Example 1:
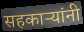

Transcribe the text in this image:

सहकाऱ्यांनी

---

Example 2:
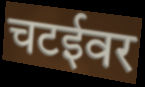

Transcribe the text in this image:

चटईवर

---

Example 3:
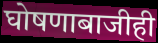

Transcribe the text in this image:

घोषणाबाजीही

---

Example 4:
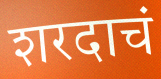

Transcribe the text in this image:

शरदाचं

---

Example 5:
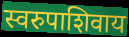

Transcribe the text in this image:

स्वरुपाशिवाय